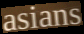
asians